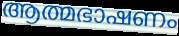
ആത്മഭാഷണം